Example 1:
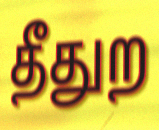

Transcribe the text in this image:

தீதுற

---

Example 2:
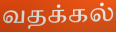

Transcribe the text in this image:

வதக்கல்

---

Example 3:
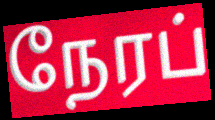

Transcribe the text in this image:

நேரப்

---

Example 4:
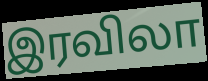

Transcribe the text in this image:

இரவிலா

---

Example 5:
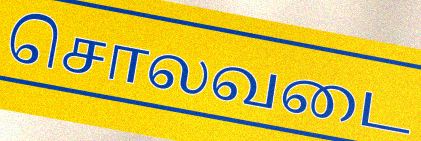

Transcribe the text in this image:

சொலவடை